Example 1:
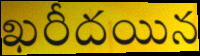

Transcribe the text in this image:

ఖరీదయిన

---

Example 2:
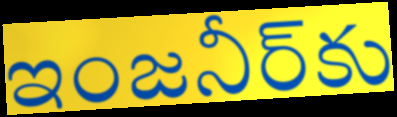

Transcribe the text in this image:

ఇంజనీర్‌కు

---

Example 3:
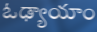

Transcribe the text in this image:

ఓఢ్యాయాం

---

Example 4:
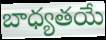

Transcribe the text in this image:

బాధ్యతయే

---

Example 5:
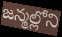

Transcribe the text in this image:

జన్మల్లోని